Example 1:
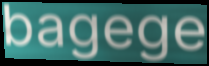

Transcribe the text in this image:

bagege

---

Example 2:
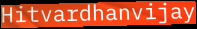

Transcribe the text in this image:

Hitvardhanvijay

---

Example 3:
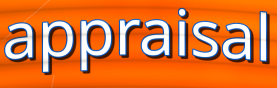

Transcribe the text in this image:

appraisal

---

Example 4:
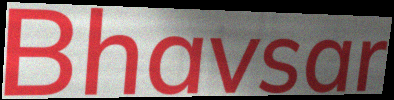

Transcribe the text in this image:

Bhavsar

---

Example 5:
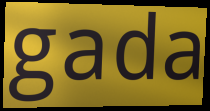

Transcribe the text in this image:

gada